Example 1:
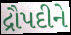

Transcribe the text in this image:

દ્રૌપદીને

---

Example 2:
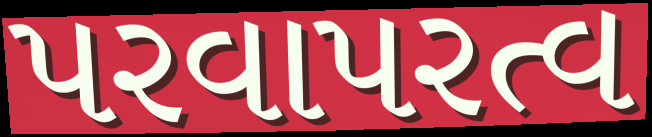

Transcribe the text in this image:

પરવાપરત્વ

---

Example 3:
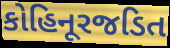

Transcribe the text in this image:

કોહિનૂરજડિત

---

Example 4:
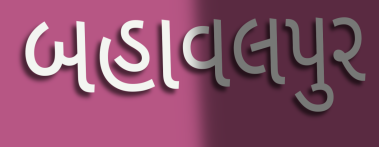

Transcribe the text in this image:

બહાવલપુર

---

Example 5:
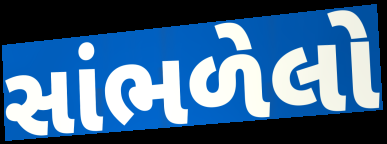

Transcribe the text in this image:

સાંભળેલો